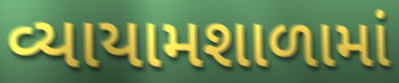
વ્યાયામશાળામાં